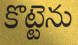
కొట్టెను